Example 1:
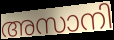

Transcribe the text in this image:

അസാനി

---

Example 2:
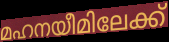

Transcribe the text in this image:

മഹനയീമിലേക്ക്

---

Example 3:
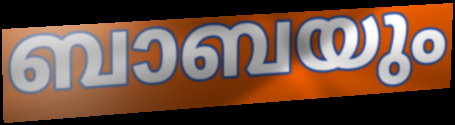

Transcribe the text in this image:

ബാബയും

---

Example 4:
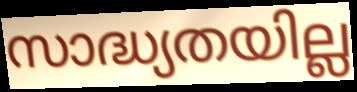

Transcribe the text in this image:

സാദ്ധ്യതയില്ല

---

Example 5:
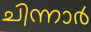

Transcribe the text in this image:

ചിന്നാർ